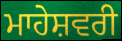
ਮਾਹੇਸ਼ਵਰੀ